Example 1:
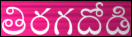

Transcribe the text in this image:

తిరగదోడి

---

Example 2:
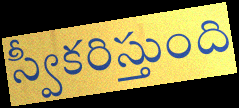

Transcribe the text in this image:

స్వీకరిస్తుంది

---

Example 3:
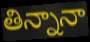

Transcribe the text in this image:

తిన్నానా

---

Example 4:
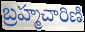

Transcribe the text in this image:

బ్రహ్మచారిణి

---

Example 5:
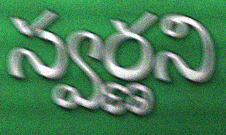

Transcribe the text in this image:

స్వర్ణని